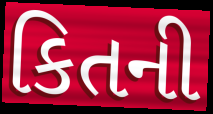
કિતની